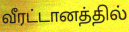
வீரட்டானத்தில்